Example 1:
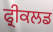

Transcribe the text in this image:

ਫ੍ਰੀਕਲਡ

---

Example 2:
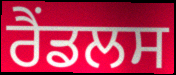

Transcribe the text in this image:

ਰੈਂਡਲਸ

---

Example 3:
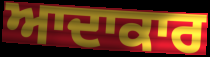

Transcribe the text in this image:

ਆਦਾਕਾਰ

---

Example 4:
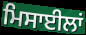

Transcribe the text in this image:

ਮਿਸਾਈਲਾਂ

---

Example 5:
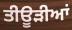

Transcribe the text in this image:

ਤੀਊੜੀਆਂ